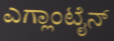
ಎಗ್ಲಾಂಟೈನ್